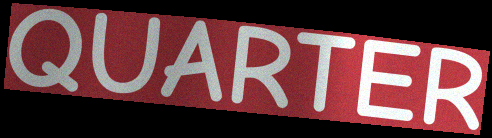
QUARTER